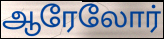
ஆரேலோர்